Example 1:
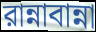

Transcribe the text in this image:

রান্নাবান্না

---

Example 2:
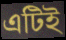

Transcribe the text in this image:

এটিই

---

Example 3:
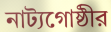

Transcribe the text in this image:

নাট্যগোষ্ঠীর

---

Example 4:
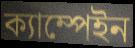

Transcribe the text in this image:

ক্যাম্পেইন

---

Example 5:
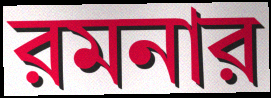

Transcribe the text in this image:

রমনার